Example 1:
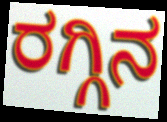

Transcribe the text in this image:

ರಗ್ಗಿನ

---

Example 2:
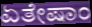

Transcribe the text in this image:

ಏತೇಷಾಂ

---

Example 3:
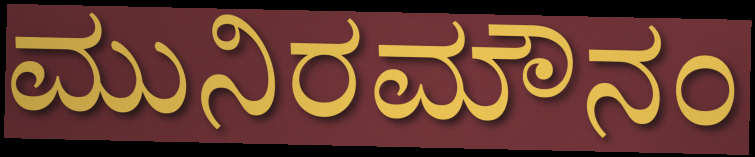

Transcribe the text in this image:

ಮುನಿರಮೌನಂ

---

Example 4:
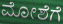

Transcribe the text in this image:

ಮೋಶೆಗೆ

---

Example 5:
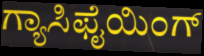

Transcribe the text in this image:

ಗ್ಯಾಸಿಫೈಯಿಂಗ್